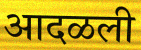
आदळली